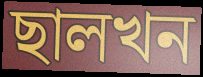
ছালখন